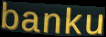
banku